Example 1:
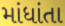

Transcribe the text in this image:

માંધાંતા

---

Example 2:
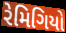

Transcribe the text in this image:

રેમિગિયો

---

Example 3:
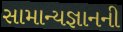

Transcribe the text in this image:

સામાન્યજ્ઞાનની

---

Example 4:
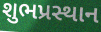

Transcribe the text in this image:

શુભપ્રસ્થાન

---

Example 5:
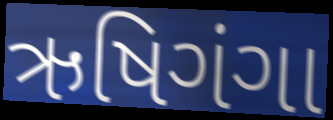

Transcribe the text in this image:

ઋષિગંગા